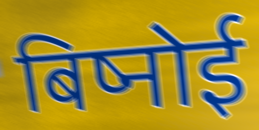
बिष्नोई